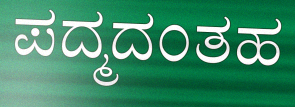
ಪದ್ಮದಂತಹ